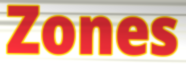
Zones